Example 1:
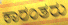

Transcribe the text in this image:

ಕಾರಂತರು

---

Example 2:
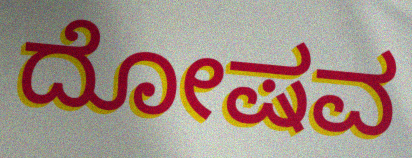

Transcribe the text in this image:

ದೋಷವ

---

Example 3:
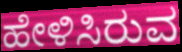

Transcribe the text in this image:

ಹೇಳಿಸಿರುವ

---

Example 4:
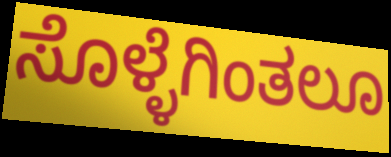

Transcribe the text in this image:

ಸೊಳ್ಳೆಗಿಂತಲೂ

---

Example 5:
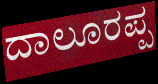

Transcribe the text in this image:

ದಾಲೂರಪ್ಪ